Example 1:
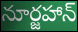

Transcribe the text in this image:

నూర్జహాన్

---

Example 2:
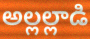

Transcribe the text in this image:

అల్లల్లాడి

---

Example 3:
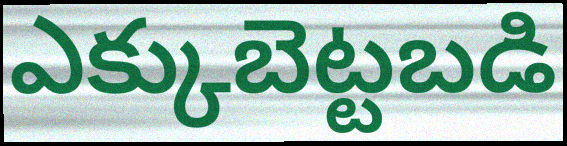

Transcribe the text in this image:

ఎక్కుబెట్టబడి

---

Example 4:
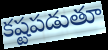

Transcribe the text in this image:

కష్టపడుతూ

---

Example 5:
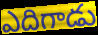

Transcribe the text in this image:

ఎదిగాడు